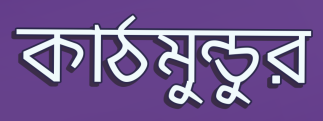
কাঠমুন্ডুর